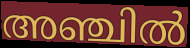
അഞ്ചിൽ